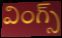
వింగ్స్